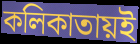
কলিকাতায়ই